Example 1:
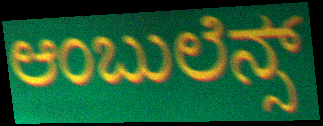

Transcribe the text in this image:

ಆಂಬುಲೆನ್ಸ್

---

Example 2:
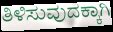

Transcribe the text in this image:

ತಿಳಿಸುವುದಕ್ಕಾಗಿ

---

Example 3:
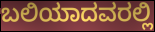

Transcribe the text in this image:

ಬಲಿಯಾದವರಲ್ಲಿ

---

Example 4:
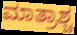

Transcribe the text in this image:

ಮಾತ್ರಾಶ್ಚ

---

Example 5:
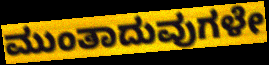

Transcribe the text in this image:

ಮುಂತಾದುವುಗಳೇ